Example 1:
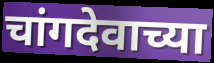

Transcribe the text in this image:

चांगदेवाच्या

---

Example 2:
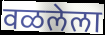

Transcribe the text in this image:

वळलेला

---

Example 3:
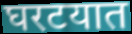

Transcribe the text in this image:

घरटयात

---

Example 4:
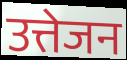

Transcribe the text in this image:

उत्तेजन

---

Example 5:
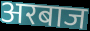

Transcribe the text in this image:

अरबाज